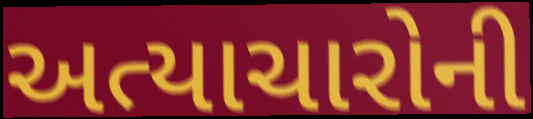
અત્યાચારોની